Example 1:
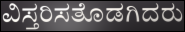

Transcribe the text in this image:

ವಿಸ್ತರಿಸತೊಡಗಿದರು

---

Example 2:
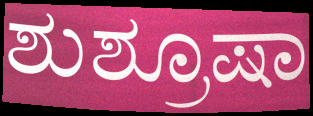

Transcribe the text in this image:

ಶುಶ್ರೂಷಾ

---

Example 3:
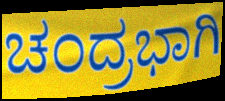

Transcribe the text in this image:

ಚಂದ್ರಭಾಗಿ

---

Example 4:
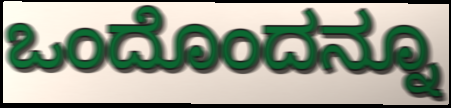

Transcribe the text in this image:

ಒಂದೊಂದನ್ನೂ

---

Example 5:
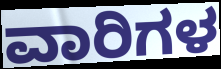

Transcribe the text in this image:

ವಾರಿಗಳ